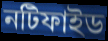
নটিফাইড